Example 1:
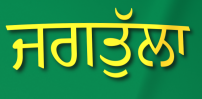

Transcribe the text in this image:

ਜਗਤੁੱਲਾ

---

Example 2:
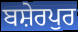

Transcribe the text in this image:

ਬਸ਼ੇਰਪੁਰ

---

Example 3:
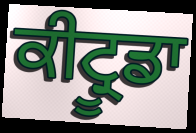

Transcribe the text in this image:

ਕੀਟ੍ਰੂਡਾ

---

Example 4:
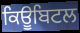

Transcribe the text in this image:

ਕਿਊਬਿਟਲ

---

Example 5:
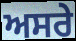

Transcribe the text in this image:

ਅਸਰੇ